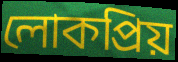
লোকপ্ৰিয়